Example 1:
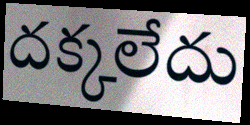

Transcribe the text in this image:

దక్కలేదు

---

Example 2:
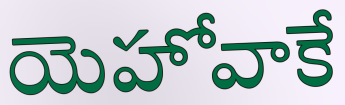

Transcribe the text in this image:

యెహోవాకే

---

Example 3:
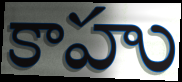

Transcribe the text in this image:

కాహు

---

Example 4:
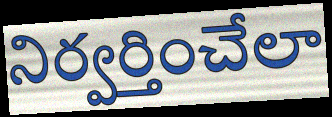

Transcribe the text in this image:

నిర్వర్తించేలా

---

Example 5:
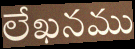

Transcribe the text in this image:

లేఖనము